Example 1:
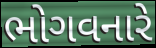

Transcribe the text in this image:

ભોગવનારે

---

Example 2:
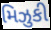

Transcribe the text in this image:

મિઝુકી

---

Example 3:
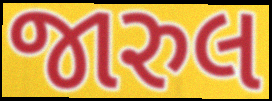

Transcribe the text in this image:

જારુલ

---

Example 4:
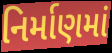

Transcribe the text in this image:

નિર્માણમાં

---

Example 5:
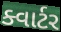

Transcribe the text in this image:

ક્વાર્ટર